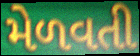
મેળવતી